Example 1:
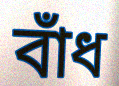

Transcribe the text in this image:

বাঁধ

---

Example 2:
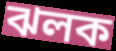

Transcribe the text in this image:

ঝলক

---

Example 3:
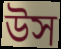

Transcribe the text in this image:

উস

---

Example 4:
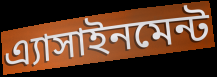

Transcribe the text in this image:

এ্যাসাইনমেন্ট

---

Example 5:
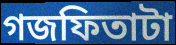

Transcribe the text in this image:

গজফিতাটা